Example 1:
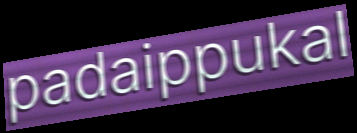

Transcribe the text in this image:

padaippukal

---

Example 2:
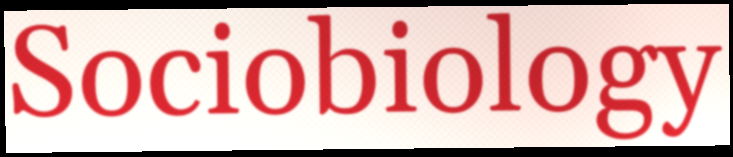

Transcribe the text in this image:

Sociobiology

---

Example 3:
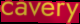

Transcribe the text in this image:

cavery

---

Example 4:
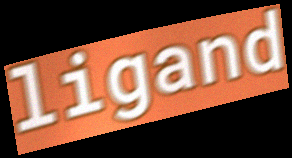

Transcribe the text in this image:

ligand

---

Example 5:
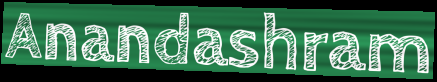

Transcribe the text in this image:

Anandashram